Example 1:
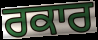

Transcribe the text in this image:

ਰਕਾਰ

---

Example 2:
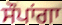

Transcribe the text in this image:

ਸੌਪਾਂਗਾ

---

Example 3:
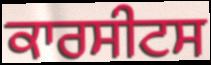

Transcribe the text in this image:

ਕਾਰਸੀਟਸ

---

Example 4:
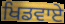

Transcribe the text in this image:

ਖਿਡਵਾਏ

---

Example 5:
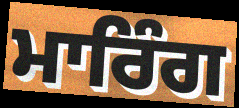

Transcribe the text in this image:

ਮਾਰਿੰਗ